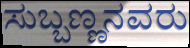
ಸುಬ್ಬಣ್ಣನವರು